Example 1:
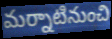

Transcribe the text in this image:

మర్నాటినుంచి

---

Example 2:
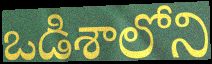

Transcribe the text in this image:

ఒడిశాలోని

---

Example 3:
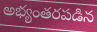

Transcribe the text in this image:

అభ్యంతరపడిన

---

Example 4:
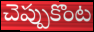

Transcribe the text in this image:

చెప్పుకొంట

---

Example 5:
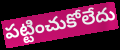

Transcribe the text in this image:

పట్టించుకోలేదు